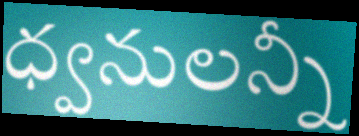
ధ్వనులన్నీ